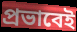
প্রভাবেই